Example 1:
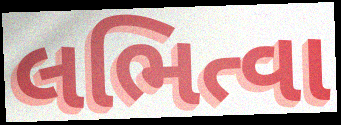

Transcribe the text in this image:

લભિત્વા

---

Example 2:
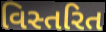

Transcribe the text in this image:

વિસ્તરિત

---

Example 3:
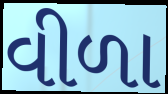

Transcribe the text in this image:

વીળા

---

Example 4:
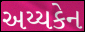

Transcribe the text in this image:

અય્યકેન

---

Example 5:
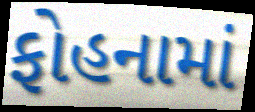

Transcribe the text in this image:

ફોહનામાં